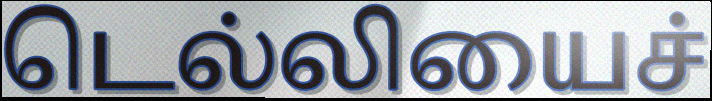
டெல்லியைச்